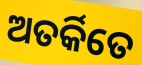
ଅତର୍କିତେ